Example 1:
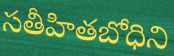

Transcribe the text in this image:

సతీహితబోధిని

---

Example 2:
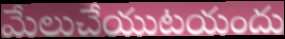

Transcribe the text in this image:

మేలుచేయుటయందు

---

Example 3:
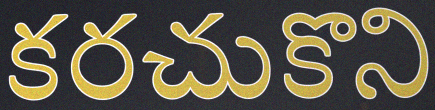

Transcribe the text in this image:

కరచుకొని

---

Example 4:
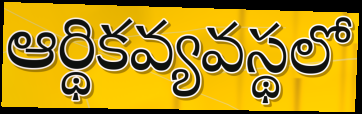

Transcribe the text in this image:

ఆర్థికవ్యవస్థలో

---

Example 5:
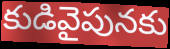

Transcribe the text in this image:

కుడివైపునకు